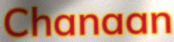
Chanaan